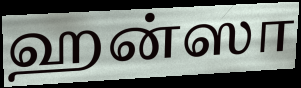
ஹன்ஸா